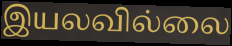
இயலவில்லை